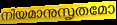
നിയമാനുസൃതമോ